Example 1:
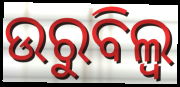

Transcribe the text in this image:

ଉରୁବିଲ୍ୱ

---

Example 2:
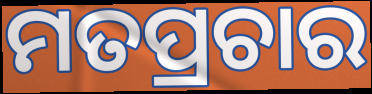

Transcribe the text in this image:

ମତପ୍ରଚାର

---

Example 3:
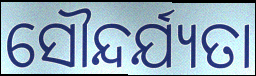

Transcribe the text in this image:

ସୌନ୍ଦର୍ଯ୍ୟତା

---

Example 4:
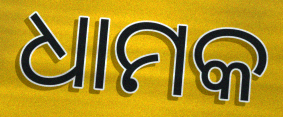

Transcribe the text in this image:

ଧାମକ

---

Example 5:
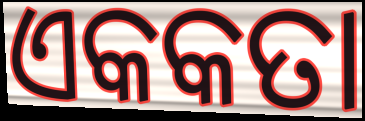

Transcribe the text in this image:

ଏକକତା